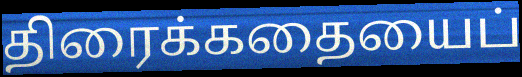
திரைக்கதையைப்